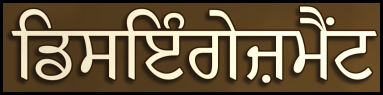
ਡਿਸਇੰਗੇਜ਼ਮੈਂਟ